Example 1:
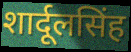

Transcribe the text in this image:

शार्दूलसिंह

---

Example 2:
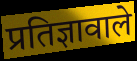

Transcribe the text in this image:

प्रतिज्ञावाले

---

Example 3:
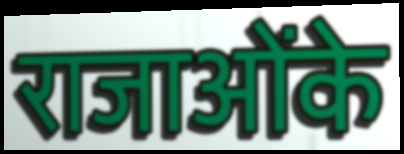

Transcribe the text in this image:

राजाओंके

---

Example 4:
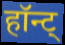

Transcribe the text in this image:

हॉन्ट्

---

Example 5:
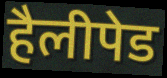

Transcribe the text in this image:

हैलीपेड